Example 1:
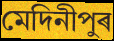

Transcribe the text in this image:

মেদিনীপুৰ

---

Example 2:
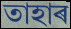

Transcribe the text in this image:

তাহাৰ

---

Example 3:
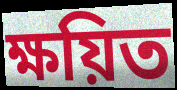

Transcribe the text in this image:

ক্ষয়িত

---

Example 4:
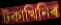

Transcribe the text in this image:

টকাখিনিৰ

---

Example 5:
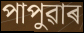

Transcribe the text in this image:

পাপুৱাৰ